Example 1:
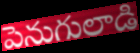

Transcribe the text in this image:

పెనుగులాడి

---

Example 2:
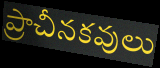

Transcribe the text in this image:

ప్రాచీనకవులు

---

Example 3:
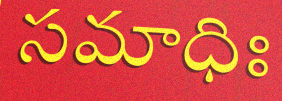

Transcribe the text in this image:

సమాధిః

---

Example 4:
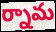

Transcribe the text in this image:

ర్నామ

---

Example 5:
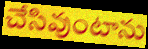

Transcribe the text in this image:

చేసివుంటాను